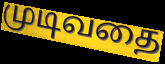
முடிவதை